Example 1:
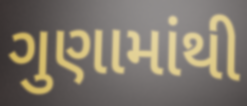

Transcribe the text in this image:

ગુણામાંથી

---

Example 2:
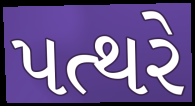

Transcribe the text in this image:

પત્થરે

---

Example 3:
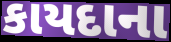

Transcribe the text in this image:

કાયદાના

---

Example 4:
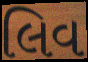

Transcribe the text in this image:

લિવ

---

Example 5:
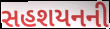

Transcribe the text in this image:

સહશયનની